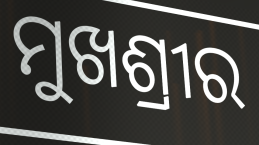
ମୁଖଶ୍ରୀର